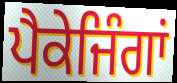
ਪੈਕੇਜਿੰਗਾਂ